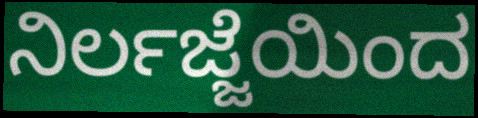
ನಿರ್ಲಜ್ಜೆಯಿಂದ